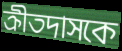
ক্রীতদাসকে